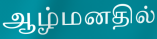
ஆழ்மனதில்